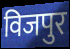
विजपुर